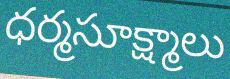
ధర్మసూక్ష్మాలు